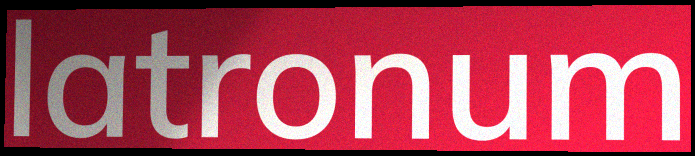
latronum